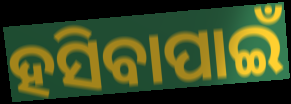
ହସିବାପାଇଁ